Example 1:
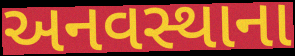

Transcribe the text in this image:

અનવસ્થાના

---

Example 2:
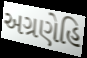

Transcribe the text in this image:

અગ્રણેહિ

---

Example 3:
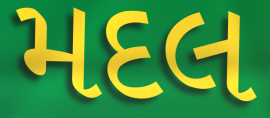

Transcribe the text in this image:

મદલ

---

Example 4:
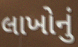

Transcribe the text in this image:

લાખોનું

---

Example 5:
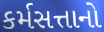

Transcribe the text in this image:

કર્મસત્તાનો